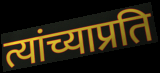
त्यांच्याप्रति